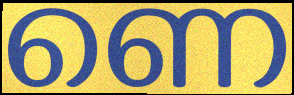
ണെ